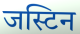
जस्टिन